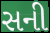
સની